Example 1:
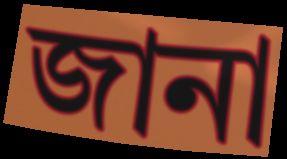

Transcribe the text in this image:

জানা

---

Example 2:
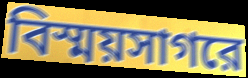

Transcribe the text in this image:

বিস্ময়সাগরে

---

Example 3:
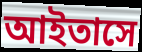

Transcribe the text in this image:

আইতাসে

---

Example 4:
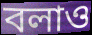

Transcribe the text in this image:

বলাও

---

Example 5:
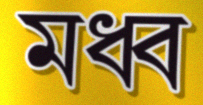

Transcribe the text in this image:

মধ্ব